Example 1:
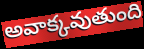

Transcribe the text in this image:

అవాక్కవుతుంది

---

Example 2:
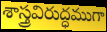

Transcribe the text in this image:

శాస్త్రవిరుద్ధముగా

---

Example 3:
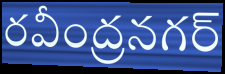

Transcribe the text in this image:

రవీంద్రనగర్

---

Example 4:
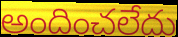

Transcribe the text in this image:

అందించలేదు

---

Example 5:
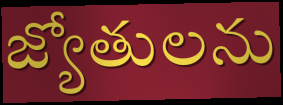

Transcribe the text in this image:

జ్యోతులను